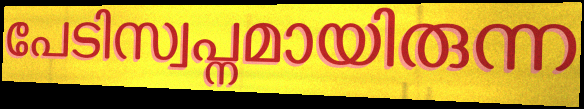
പേടിസ്വപ്നമായിരുന്ന